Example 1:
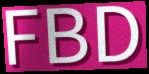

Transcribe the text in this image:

FBD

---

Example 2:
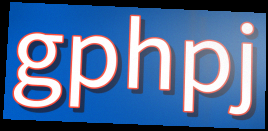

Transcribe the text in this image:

gphpj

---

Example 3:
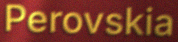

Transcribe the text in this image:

Perovskia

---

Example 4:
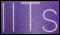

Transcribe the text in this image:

IITs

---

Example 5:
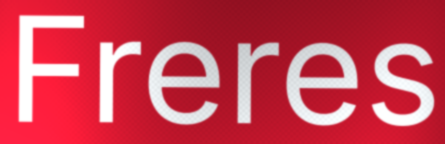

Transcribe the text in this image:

Freres